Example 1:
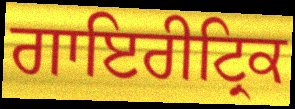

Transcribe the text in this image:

ਗਾਇਰੀਟ੍ਰਿਕ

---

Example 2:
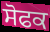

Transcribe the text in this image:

ਸੋਫਕ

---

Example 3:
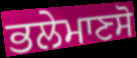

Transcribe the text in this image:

ਭਲੇਮਾਣਸੋ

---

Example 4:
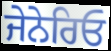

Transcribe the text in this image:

ਜੇਨੇਰਿਓ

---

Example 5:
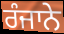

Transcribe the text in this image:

ਰੰਜਾਨੇ